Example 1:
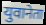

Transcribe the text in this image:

युवानेता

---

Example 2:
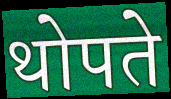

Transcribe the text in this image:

थोपते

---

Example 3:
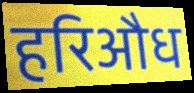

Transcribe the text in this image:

हरिऔध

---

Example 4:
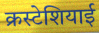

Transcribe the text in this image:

क्रस्टेशियाई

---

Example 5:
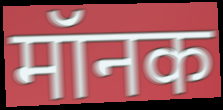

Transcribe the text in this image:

मॉनक